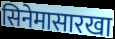
सिनेमासारखा